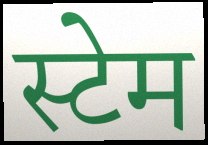
स्टेम